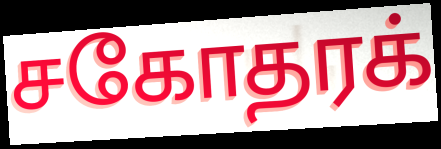
சகோதரக்